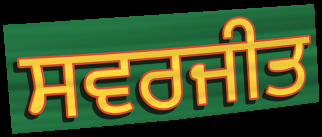
ਸਵਰਜੀਤ